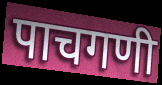
पाचगणी